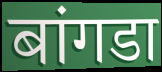
बांगडा